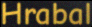
Hrabal